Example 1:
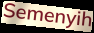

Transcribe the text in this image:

Semenyih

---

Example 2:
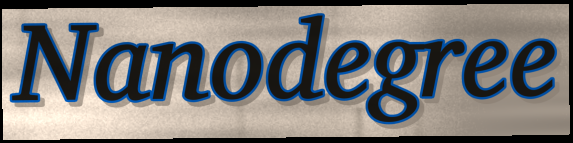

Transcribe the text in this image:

Nanodegree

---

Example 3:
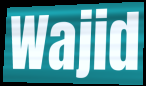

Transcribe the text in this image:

Wajid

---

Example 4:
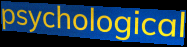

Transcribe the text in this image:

psychological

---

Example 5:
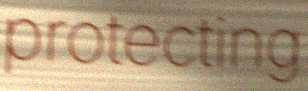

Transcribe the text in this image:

protecting